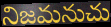
నిజమనుచు